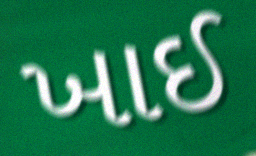
ખાઈ